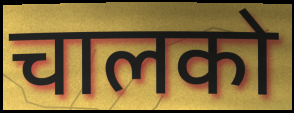
चालको